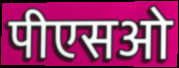
पीएसओ